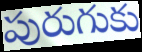
పురుగుకు